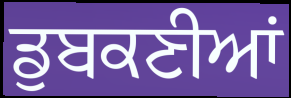
ਡੁਬਕਣੀਆਂ